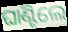
ଘାଣ୍ଟିଲେ